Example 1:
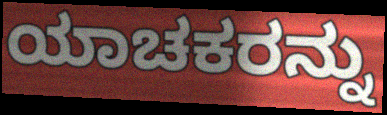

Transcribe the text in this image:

ಯಾಚಕರನ್ನು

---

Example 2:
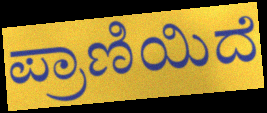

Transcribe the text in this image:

ಪ್ರಾಣಿಯಿದೆ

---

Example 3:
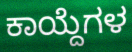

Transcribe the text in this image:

ಕಾಯ್ದೆಗಳ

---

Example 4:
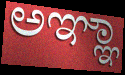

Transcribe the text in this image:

ಅಞ್ಞಾ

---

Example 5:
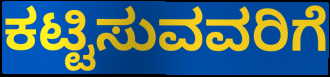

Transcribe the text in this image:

ಕಟ್ಟಿಸುವವರಿಗೆ